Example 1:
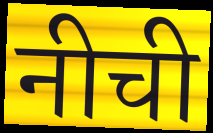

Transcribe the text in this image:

नीची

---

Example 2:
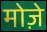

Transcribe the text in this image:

मोज़े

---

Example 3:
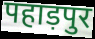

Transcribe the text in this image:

पहाड़पुर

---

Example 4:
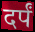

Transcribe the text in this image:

दर्पं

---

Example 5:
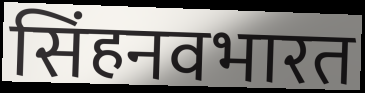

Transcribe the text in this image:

सिंहनवभारत